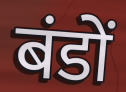
बंडों